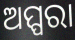
ଅପ୍ପରା